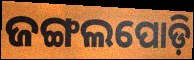
ଜଙ୍ଗଲପୋଡ଼ି